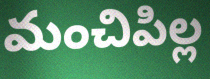
మంచిపిల్ల